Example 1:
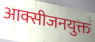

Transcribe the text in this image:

आक्सीजनयुक्त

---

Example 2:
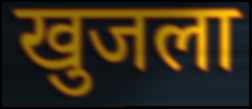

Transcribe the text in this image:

खुजला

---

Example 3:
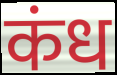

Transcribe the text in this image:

कंध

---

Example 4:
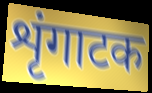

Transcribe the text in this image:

शृंगाटक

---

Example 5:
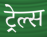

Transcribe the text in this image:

ट्रेल्स